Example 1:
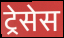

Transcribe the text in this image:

ट्रेसेस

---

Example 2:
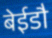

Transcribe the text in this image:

बेईडौ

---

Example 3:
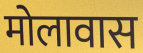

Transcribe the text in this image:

मोलावास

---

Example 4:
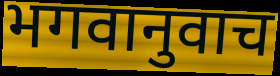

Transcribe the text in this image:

भगवानुवाच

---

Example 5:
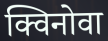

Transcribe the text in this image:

क्विनोवा